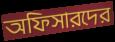
অফিসারদের